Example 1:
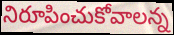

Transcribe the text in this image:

నిరూపించుకోవాలన్న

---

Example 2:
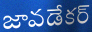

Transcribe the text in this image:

జావడేకర్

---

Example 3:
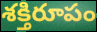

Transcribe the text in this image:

శక్తిరూపం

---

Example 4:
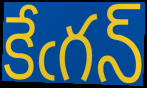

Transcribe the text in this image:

కేఁగన్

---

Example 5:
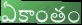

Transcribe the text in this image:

ఏకాంతం